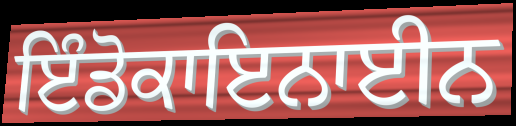
ਇੰਡੋਕਾਇਨਾਈਨ